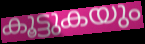
കൂട്ടുകയും